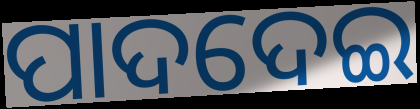
ପାଦଦେଇ